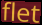
flet